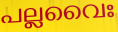
പല്ലവൈഃ